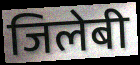
जिलेबी